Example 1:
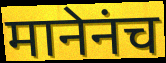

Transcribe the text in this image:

मानेनंच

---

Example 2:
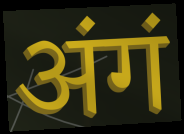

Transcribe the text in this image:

अंगं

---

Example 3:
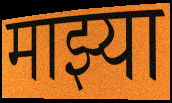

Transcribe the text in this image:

माझ्या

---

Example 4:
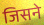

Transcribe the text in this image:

जिसने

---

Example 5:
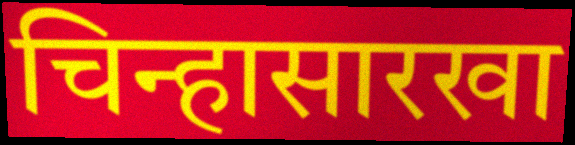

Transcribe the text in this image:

चिन्हासारखा